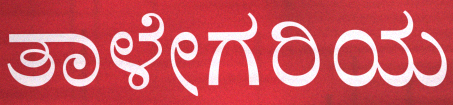
ತಾಳೇಗರಿಯ